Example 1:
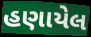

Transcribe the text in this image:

હણાયેલ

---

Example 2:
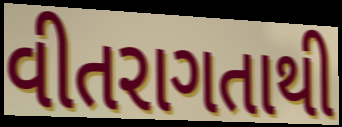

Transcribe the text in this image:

વીતરાગતાથી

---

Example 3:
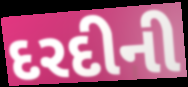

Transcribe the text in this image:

દરદીની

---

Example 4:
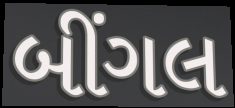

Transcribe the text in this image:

બીંગલ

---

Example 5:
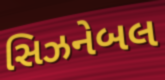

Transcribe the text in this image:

સિઝનેબલ